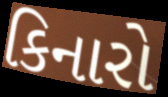
કિનારો